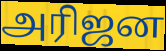
அரிஜன